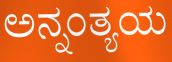
ಅನ್ನಂತ್ಯಯ